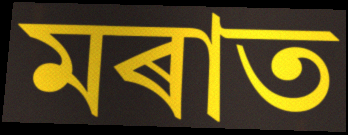
মৰাত